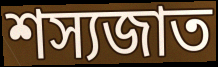
শস্যজাত